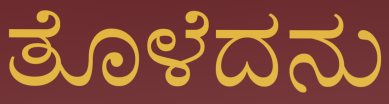
ತೊಳೆದನು